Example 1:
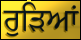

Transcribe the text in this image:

ਰੁੜਿਆਂ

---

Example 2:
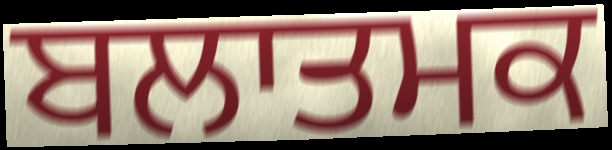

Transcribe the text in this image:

ਬਲਾਤਮਕ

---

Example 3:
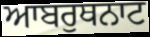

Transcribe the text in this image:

ਆਬਰੁਥਨਾਟ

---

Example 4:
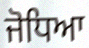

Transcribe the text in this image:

ਜੋਧਿਆ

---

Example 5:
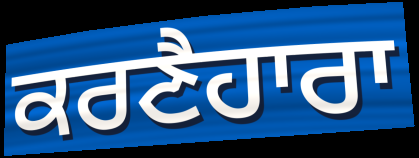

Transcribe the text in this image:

ਕਰਣੈਹਾਰਾ